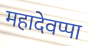
महादेवप्पा